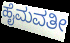
ಹೈಮವತೀ